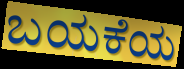
ಬಯಕೆಯ